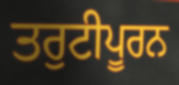
ਤਰੁਟੀਪੂਰਨ